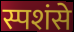
स्पशंसे